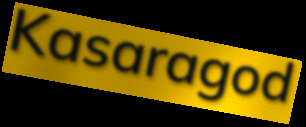
Kasaragod